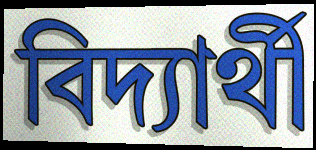
বিদ্যাৰ্থী